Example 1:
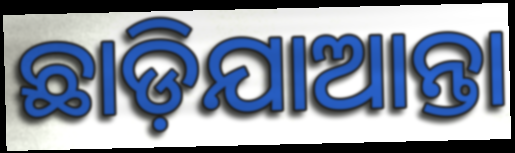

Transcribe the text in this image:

ଛାଡ଼ିଯାଆନ୍ତା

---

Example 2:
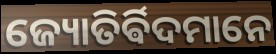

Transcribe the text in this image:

ଜ୍ୟୋତିର୍ଵିଦମାନେ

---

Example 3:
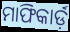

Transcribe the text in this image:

ମାଫିକାର୍ଡ଼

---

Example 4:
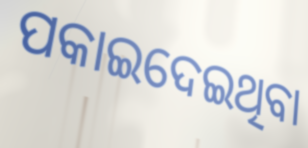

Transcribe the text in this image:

ପକାଇଦେଇଥିବା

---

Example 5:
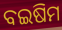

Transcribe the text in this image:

ବଇଷିମ